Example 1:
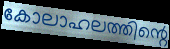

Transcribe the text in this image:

കോലാഹലത്തിന്റെ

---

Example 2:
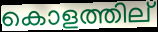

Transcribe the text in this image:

കൊളത്തില്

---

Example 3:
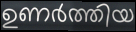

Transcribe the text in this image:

ഉണർത്തിയ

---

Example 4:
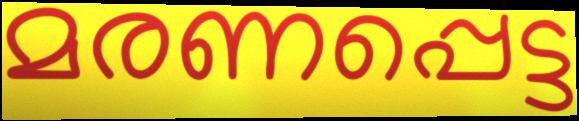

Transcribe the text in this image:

മരണപ്പെട്ട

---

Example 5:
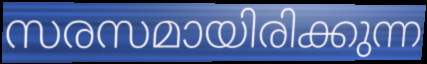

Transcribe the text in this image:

സരസമായിരിക്കുന്ന